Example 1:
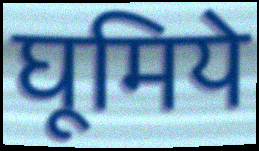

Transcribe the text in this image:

घूमिये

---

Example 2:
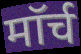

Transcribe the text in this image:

मॉर्च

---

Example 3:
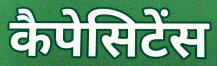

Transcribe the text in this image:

कैपेसिटेंस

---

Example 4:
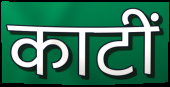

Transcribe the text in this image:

काटीं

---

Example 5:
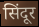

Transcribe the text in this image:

सिंदूर